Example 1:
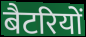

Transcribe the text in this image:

बैटरियों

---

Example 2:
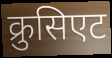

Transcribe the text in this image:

क्रुसिएट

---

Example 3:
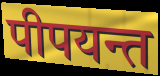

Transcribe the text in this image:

पीपयन्त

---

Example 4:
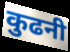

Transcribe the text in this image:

कुढनी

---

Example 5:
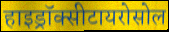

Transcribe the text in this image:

हाइड्रॉक्सीटायरोसोल